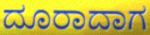
ದೂರಾದಾಗ